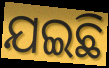
ଯଇଛି